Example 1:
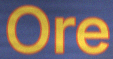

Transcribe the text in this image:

Ore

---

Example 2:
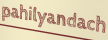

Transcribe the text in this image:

pahilyandach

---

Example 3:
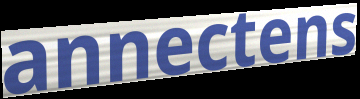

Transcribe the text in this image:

annectens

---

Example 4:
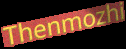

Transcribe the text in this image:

Thenmozhi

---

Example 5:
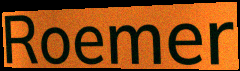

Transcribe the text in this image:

Roemer